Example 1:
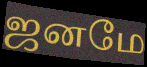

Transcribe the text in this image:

ஜனமே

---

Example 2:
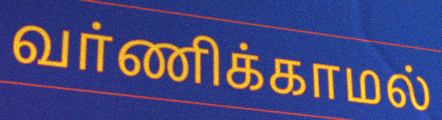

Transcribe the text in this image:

வர்ணிக்காமல்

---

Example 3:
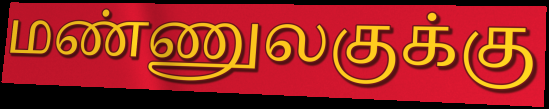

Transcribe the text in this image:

மண்ணுலகுக்கு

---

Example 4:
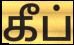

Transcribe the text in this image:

கீப்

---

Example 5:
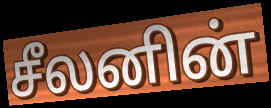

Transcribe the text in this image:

சீலனின்